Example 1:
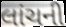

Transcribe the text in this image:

લાંચની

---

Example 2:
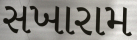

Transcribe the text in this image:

સખારામ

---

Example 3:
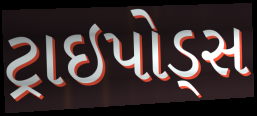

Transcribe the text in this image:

ટ્રાઇપોડ્સ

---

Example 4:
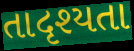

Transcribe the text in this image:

તાદૃશ્યતા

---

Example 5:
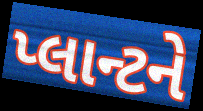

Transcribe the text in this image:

પ્લાન્ટને